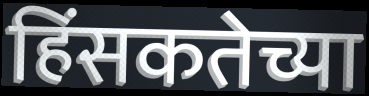
हिंसकतेच्या